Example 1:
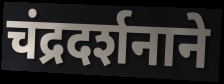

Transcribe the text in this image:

चंद्रदर्शनाने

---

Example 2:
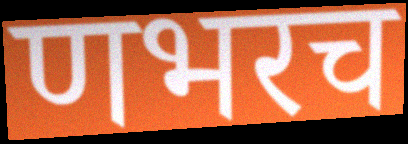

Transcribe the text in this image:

णभरच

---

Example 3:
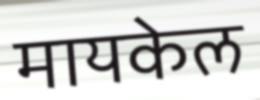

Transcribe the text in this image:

मायकेल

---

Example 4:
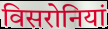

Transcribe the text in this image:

विसरोनियां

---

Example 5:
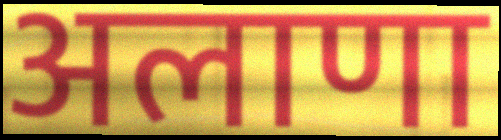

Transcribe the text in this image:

अलाणा